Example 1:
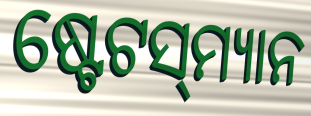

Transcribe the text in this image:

ଷ୍ଟେଟସ୍‌ମ୍ୟାନ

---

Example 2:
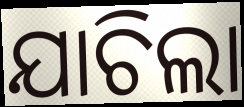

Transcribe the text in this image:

ଯାଚିଲା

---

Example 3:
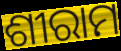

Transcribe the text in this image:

ଶୀରାମ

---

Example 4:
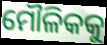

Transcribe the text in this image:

ମୌଳିକକୁ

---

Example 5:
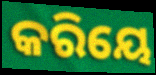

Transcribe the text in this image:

କରିୟେ